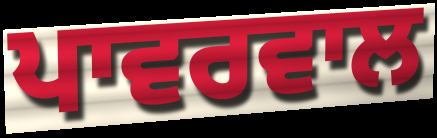
ਪਾਵਰਵਾਲ